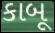
કાબૂ